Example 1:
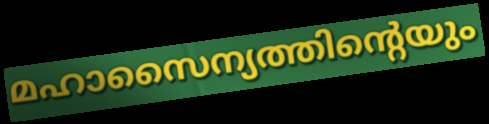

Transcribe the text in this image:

മഹാസൈന്യത്തിന്റെയും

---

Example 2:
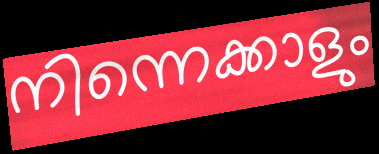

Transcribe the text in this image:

നിന്നെക്കാളും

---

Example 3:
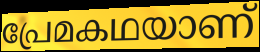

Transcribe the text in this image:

പ്രേമകഥയാണ്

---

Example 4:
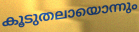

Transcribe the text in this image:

കൂടുതലായൊന്നും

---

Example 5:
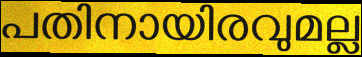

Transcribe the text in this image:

പതിനായിരവുമല്ല